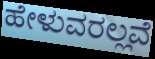
ಹೇಳುವರಲ್ಲವೆ